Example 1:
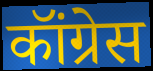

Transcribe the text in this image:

कॉंग्रेस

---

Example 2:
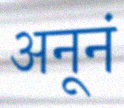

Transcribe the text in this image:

अनूनं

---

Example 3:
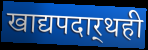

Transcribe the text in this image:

खाद्यपदार्थही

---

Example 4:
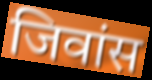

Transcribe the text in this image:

जिवांस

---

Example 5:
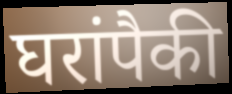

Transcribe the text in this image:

घरांपैकी